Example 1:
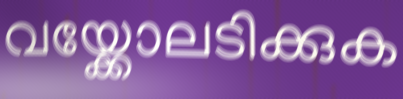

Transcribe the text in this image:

വയ്ക്കോലടിക്കുക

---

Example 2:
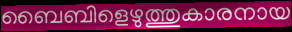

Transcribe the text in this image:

ബൈബിളെഴുത്തുകാരനായ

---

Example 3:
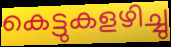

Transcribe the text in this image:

കെട്ടുകളഴിച്ചു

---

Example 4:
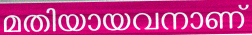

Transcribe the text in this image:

മതിയായവനാണ്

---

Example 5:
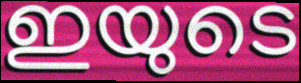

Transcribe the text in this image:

ഇയുടെ